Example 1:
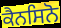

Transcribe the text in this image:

ਕੈਨਸਿਨੋ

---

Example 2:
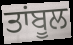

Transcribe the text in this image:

ਤਾਂਬੂਲ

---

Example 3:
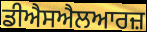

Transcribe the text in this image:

ਡੀਐਸਐਲਆਰਜ਼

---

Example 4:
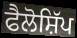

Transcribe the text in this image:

ਫੈਲੋਸ਼ਿੱਪ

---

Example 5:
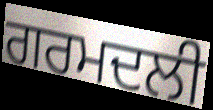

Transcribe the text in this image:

ਗਰਮਦਲੀ